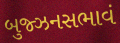
બુજ્ઝનસભાવં